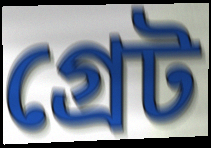
গ্রেট